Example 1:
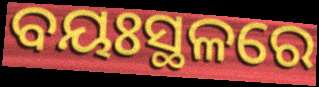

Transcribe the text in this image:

ବୟଃସ୍ଥଳରେ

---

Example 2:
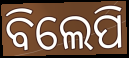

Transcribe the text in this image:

ବିଲେପି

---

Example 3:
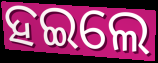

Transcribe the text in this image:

ହଇଲେ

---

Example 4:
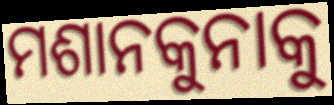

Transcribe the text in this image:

ମଶାନକୁନାକୁ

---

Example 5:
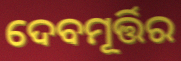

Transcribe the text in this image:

ଦେବମୂର୍ତ୍ତିର